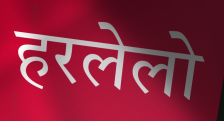
हरलेलो